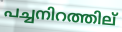
പച്ചനിറത്തില്